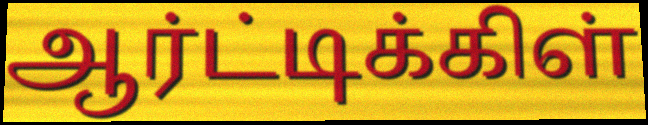
ஆர்ட்டிக்கிள்